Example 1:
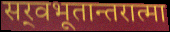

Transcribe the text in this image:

सर्वभूतान्तरात्मा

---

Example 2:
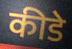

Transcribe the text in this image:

कीडे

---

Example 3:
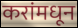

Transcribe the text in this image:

करांमधून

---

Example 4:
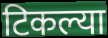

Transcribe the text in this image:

टिकल्या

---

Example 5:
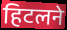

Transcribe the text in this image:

हिटलने